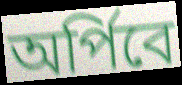
অর্পিবে